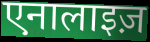
एनालाइज़